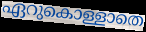
ഏറുകൊള്ളാതെ